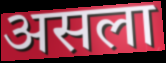
असला